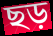
ছড়